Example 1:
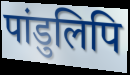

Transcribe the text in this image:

पांडुलिपि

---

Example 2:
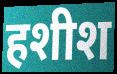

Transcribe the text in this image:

हशीश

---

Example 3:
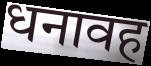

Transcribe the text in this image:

धनावह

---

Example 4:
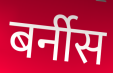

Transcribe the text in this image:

बर्नीस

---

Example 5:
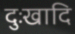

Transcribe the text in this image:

दुःखादि